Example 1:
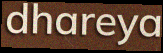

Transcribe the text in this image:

dhareya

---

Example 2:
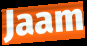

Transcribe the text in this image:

Jaam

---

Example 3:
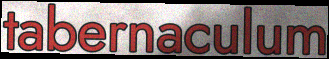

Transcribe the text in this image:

tabernaculum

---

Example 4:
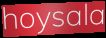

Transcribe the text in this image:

hoysala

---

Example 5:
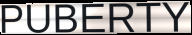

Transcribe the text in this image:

PUBERTY